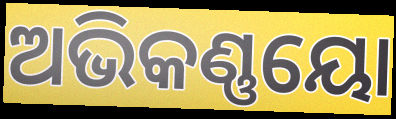
ଅଭିକଣ୍ଣୟୋ